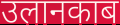
उलानकाब